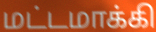
மட்டமாக்கி